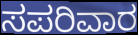
ಸಪರಿವಾರ